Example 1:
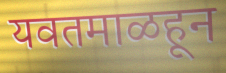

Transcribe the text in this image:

यवतमाळहून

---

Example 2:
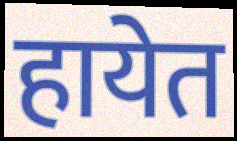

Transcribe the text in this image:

हायेत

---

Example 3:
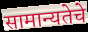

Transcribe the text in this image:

सामान्यतेचे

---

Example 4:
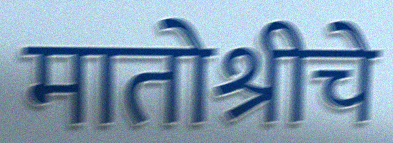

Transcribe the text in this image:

मातोश्रीचे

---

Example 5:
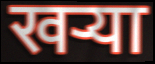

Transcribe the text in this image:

खऱ्या